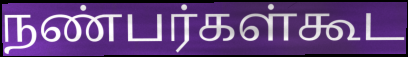
நண்பர்கள்கூட